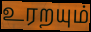
உரறயும்